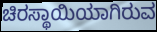
ಚಿರಸ್ಥಾಯಿಯಾಗಿರುವ